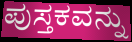
ಪುಸ್ತಕವನ್ನು